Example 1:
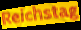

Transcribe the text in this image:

Reichstag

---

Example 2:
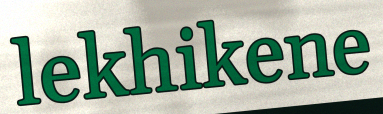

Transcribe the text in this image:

lekhikene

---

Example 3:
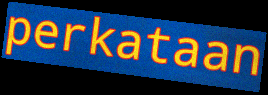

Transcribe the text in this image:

perkataan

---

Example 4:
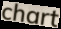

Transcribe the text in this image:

chart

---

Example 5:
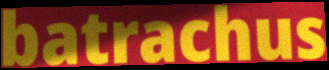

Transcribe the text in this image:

batrachus